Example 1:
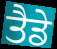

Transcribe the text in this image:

ਤੈਡੇ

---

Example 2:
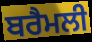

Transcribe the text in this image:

ਬਰੈਮਲੀ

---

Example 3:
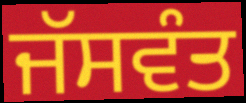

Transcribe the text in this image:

ਜੱਸਵੰਤ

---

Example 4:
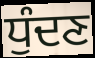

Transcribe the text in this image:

ਧੁੰਦਣ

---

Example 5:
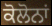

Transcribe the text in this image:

ਕੋਲੋਨਾਂ